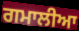
ਗਮਾਲੀਆ